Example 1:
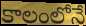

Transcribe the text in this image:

కాలంలోనే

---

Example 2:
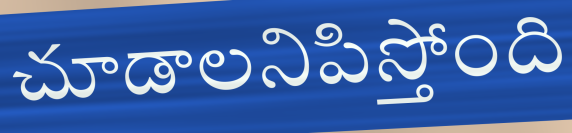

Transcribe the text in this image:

చూడాలనిపిస్తోంది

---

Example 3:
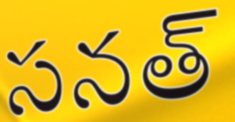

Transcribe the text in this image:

సనత్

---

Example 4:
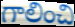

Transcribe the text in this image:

గాలించి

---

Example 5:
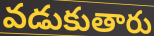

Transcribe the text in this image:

వడుకుతారు